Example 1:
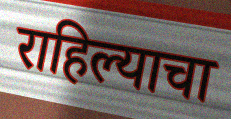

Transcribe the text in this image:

राहिल्याचा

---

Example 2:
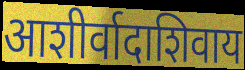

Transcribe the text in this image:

आशीर्वादाशिवाय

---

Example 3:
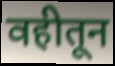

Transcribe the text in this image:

वहीतून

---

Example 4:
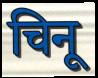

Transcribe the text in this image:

चिनू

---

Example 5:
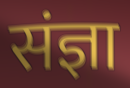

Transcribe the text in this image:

संज्ञा